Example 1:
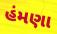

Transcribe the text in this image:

હંમણા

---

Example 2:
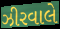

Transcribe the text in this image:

ઝીરવાલે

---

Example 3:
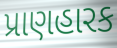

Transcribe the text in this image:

પ્રાણહારક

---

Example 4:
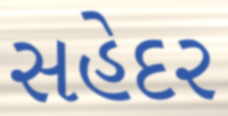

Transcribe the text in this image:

સહેદર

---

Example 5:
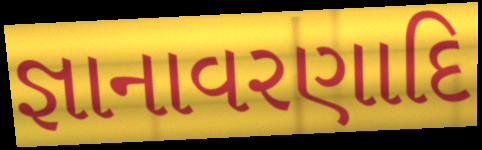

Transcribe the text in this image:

જ્ઞાનાવરણાદિ